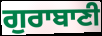
ਗੁਰਾਬਾਣੀ